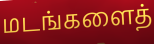
மடங்களைத்